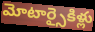
మోటార్సైకిళ్లు